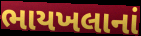
ભાયખલાનાં